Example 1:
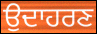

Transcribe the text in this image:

ਉਦਾਹਰਣ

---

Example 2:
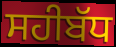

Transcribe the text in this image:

ਸਹੀਬੱਧ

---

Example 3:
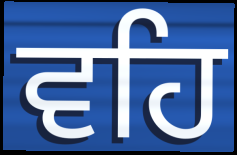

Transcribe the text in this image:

ਵਹਿ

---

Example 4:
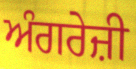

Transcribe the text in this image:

ਅੰਗਰੇਜ਼ੀ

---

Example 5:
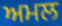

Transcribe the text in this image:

ਅਮਲ